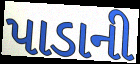
પાડાની